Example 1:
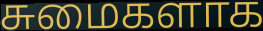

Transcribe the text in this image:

சுமைகளாக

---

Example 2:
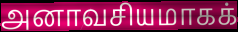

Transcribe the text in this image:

அனாவசியமாகக்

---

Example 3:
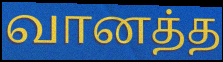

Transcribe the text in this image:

வானத்த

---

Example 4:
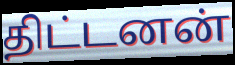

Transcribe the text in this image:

திட்டனன்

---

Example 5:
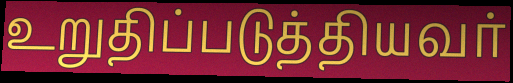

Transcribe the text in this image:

உறுதிப்படுத்தியவர்